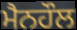
ਮੈਨਹੌਲ